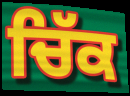
ਚਿੱਕ